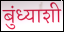
बुंध्याशी